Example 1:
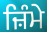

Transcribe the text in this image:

ਜ਼ਿੰਮੇ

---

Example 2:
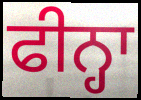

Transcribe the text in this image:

ਫੀਨ੍ਹਾ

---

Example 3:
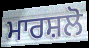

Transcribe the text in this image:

ਮਾਰਸ਼ਲੋ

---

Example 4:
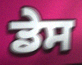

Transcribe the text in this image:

ਡੇਸ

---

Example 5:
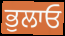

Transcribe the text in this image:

ਭੁਲਾਓ